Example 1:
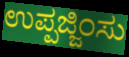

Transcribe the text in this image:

ಉಪ್ಪಜ್ಜಿಂಸು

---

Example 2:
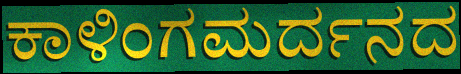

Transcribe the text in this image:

ಕಾಳಿಂಗಮರ್ದನದ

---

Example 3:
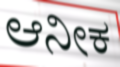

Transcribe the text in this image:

ಆನೀಕ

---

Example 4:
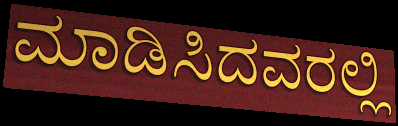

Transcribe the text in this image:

ಮಾಡಿಸಿದವರಲ್ಲಿ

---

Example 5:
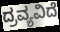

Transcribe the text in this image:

ದ್ರವ್ಯವಿದೆ